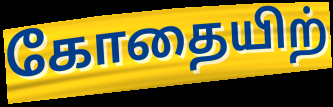
கோதையிற்